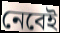
নেবেই